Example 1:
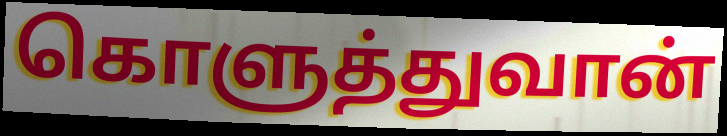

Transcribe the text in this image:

கொளுத்துவான்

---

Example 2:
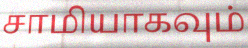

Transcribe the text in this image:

சாமியாகவும்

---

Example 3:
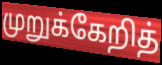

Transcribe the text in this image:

முறுக்கேறித்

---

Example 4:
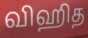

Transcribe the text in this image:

விஹித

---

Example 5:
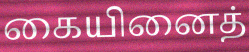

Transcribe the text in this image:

கையினைத்